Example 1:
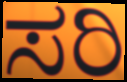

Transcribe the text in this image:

ಸರಿ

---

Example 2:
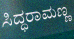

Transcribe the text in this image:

ಸಿದ್ಧರಾಮಣ್ಣ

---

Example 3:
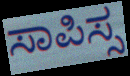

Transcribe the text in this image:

ಸಾಪಿಸ್ಸ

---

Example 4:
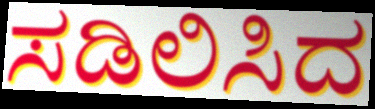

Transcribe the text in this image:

ಸಡಿಲಿಸಿದ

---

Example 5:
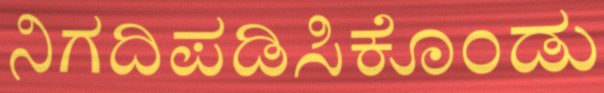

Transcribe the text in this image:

ನಿಗದಿಪಡಿಸಿಕೊಂಡು